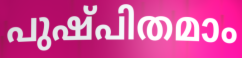
പുഷ്പിതമാം